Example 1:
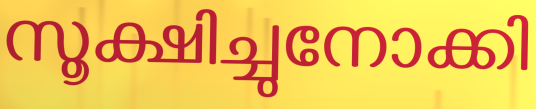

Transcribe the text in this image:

സൂക്ഷിച്ചുനോക്കി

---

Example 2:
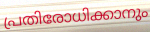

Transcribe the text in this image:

പ്രതിരോധിക്കാനും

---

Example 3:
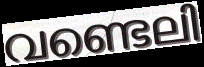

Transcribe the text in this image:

വണ്ടെലി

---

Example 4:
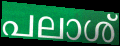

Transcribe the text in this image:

പലാശ്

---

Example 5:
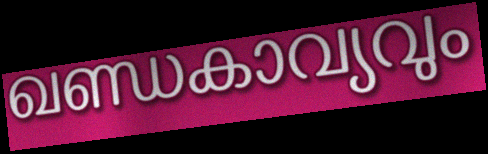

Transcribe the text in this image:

ഖണ്ഡകാവ്യവും